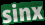
sinx